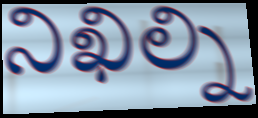
నిఖిల్ని